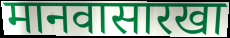
मानवासारखा